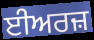
ਈਅਰਜ਼